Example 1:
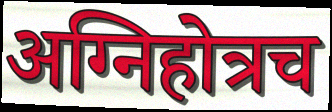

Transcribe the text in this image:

अग्निहोत्रच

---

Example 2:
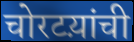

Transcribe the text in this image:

चोरटय़ांची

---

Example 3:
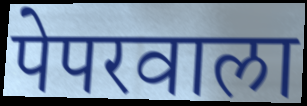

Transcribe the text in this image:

पेपरवाला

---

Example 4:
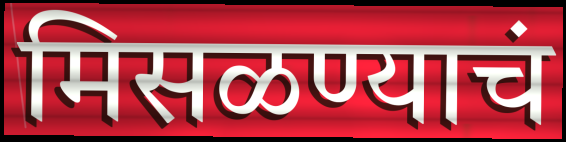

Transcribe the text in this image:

मिसळण्याचं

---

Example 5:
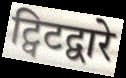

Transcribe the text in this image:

ट्विटद्वारे